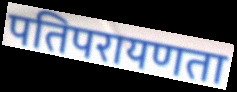
पतिपरायणता